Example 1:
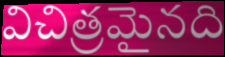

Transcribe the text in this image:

విచిత్రమైనది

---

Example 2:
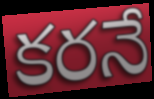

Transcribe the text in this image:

కరనే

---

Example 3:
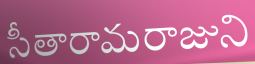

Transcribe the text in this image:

సీతారామరాజుని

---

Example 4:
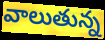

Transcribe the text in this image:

వాలుతున్న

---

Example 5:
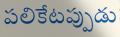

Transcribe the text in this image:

పలికేటప్పుడు